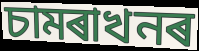
চামৰাখনৰ